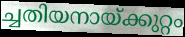
ച്ചതിയനായ്ക്കുറ്റം